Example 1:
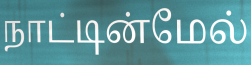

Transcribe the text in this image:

நாட்டின்மேல்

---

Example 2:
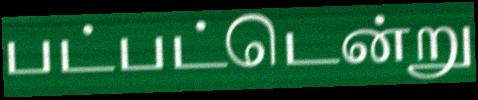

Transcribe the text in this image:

பட்பட்டென்று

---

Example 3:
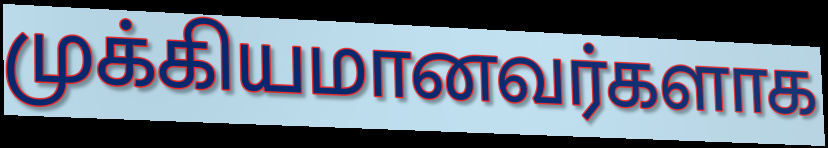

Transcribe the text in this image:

முக்கியமானவர்களாக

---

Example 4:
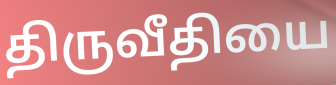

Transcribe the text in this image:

திருவீதியை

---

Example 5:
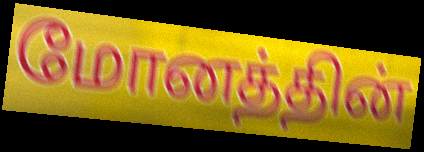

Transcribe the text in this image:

மோனத்தின்